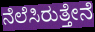
ನೆಲೆಸಿರುತ್ತೇನೆ